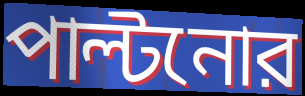
পাল্টনোর